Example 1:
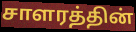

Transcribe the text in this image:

சாளரத்தின்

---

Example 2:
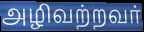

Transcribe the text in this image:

அழிவற்றவர்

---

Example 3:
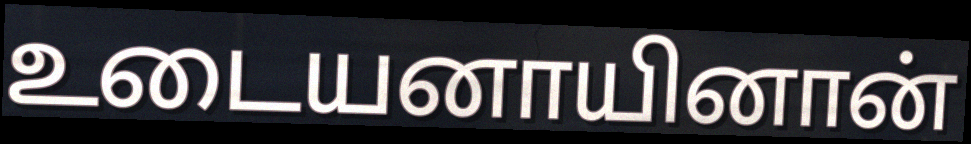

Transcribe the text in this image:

உடையனாயினான்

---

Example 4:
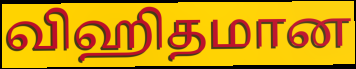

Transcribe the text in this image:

விஹிதமான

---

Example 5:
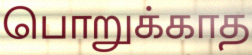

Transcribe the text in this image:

பொறுக்காத